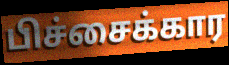
பிச்சைக்கார